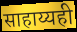
साहाय्यही